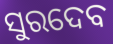
ସୁରଦେବ